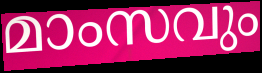
മാംസവും